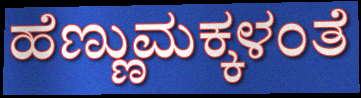
ಹೆಣ್ಣುಮಕ್ಕಳಂತೆ